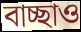
বাচ্ছাও